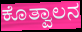
ಕೊತ್ವಾಲನ